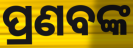
ପ୍ରଣବଙ୍କ